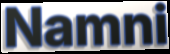
Namni